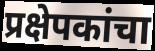
प्रक्षेपकांचा